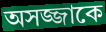
অসজ্জাকে